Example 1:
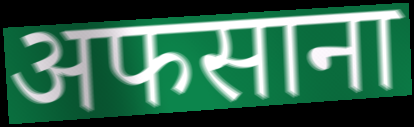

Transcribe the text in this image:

अफसाना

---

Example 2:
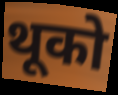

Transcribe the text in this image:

थूको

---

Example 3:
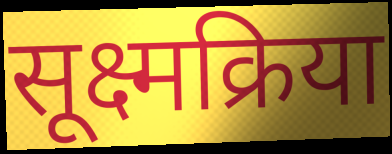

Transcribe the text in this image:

सूक्ष्मक्रिया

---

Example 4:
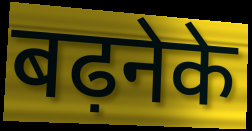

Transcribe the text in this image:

बढ़नेके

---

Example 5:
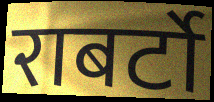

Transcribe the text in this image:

राबर्टो